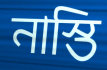
নাস্তি